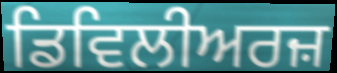
ਡਿਵਿਲੀਅਰਜ਼